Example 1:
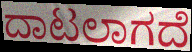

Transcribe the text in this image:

ದಾಟಲಾಗದೆ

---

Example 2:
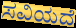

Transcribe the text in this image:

ಸವಿಯದೆ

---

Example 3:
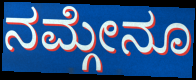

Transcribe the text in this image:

ನಮ್ಗೇನೂ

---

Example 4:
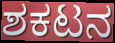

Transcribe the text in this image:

ಶಕಟನ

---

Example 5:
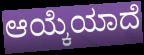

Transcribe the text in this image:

ಆಯ್ಕೆಯಾದೆ